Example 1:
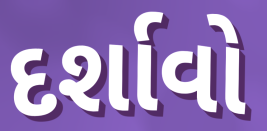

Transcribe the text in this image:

દર્શાવો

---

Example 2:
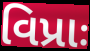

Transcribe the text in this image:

વિપ્રાઃ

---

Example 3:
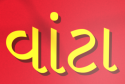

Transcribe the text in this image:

વાંટા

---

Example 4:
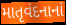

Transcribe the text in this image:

માતૃવંદનાનાં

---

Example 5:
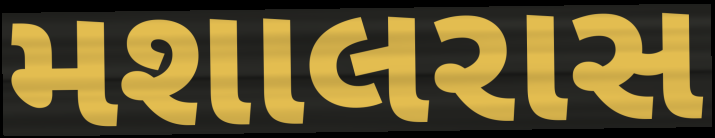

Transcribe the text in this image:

મશાલરાસ